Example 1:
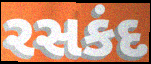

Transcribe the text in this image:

રસકંદ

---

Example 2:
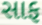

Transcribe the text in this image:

સાફ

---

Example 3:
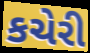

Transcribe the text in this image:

કચેરી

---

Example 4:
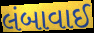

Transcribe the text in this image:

લંબાવાઈ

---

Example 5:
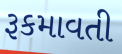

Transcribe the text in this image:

રૂકમાવતી